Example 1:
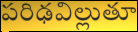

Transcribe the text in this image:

పరిఢవిల్లుతూ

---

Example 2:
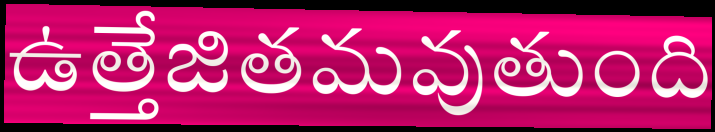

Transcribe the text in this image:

ఉత్తేజితమవుతుంది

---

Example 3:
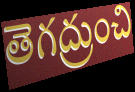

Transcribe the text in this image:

తెగద్రుంచి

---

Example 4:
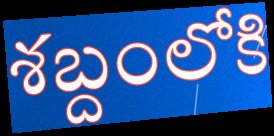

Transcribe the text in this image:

శబ్దంలోకి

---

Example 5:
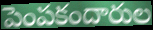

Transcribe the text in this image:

పెంపకందారుల